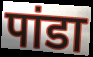
पांडा